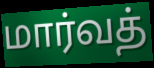
மார்வத்